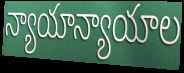
న్యాయాన్యాయాల